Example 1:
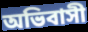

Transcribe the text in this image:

অভিবাসী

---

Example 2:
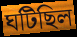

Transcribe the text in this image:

ঘটিছিল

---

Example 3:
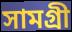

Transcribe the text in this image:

সামগ্ৰী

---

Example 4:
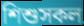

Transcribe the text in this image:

শিশুসকল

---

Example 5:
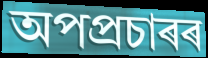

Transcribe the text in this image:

অপপ্ৰচাৰৰ